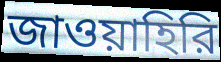
জাওয়াহিরি